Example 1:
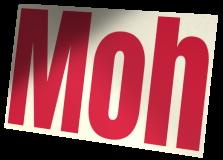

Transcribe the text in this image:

Moh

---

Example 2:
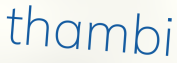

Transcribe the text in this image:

thambi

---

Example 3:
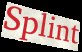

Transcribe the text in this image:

Splint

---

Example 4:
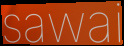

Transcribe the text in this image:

sawai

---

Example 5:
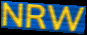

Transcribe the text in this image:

NRW